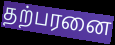
தற்பரனை